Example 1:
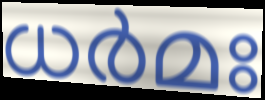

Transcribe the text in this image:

ധർമഃ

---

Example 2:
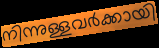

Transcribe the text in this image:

നിന്നുള്ളവർക്കായി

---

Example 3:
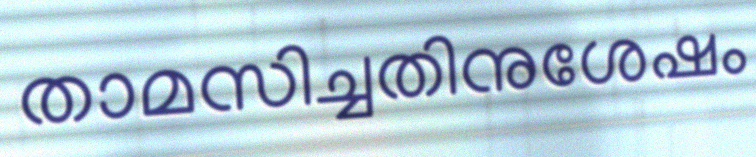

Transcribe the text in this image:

താമസിച്ചതിനുശേഷം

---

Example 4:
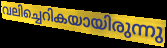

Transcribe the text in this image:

വലിച്ചെറികയായിരുന്നു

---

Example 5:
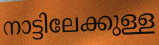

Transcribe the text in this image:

നാട്ടിലേക്കുള്ള